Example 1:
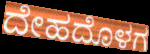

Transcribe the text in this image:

ದೇಹದೊಳಗ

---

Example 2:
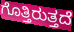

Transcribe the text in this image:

ಗೊತ್ತಿರುತ್ತದೆ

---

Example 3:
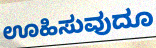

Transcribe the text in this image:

ಊಹಿಸುವುದೂ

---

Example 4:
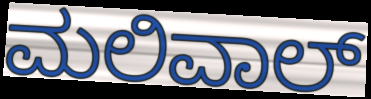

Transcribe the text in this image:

ಮಲಿವಾಲ್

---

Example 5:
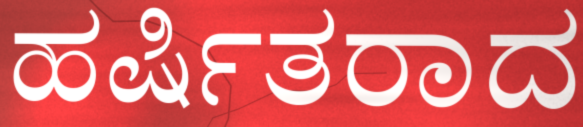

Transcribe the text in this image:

ಹರ್ಷಿತರಾದ